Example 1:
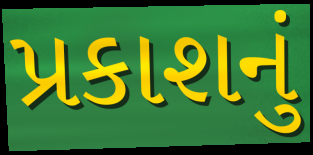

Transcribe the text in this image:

પ્રકાશનું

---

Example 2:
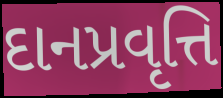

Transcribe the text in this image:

દાનપ્રવૃત્તિ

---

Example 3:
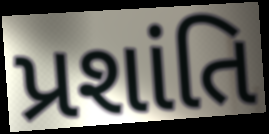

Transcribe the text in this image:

પ્રશાંતિ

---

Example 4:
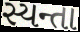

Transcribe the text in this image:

સ્યન્તા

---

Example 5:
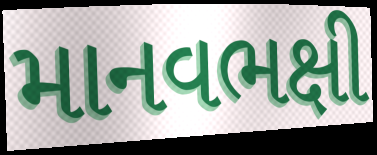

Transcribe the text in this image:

માનવભક્ષી